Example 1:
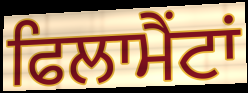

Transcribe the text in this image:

ਫਿਲਾਮੈਂਟਾਂ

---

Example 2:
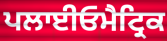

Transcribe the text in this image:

ਪਲਾਈਓਮੈਟ੍ਰਿਕ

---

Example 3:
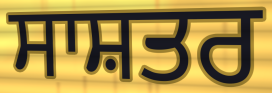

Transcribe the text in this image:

ਸਾਸ਼ਤਰ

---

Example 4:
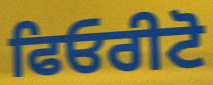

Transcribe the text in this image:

ਫਿਓਰੀਟੋ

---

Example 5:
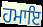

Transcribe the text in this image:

ਹਮਾਇ